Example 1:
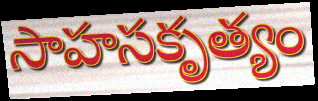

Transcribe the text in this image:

సాహసకృత్యం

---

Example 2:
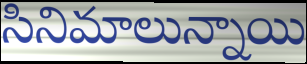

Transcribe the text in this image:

సినిమాలున్నాయి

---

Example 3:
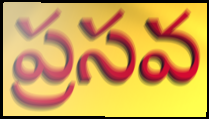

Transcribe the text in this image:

ప్రసవ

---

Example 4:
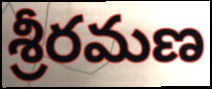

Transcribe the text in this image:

శ్రీరమణ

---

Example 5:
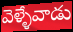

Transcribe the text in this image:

వెళ్ళేవాడు